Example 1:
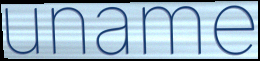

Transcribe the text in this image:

uname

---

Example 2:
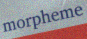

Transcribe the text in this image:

morpheme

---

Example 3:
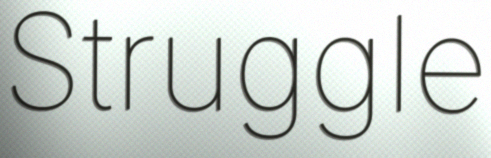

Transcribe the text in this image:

Struggle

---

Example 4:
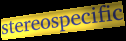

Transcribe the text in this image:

stereospecific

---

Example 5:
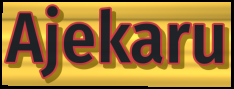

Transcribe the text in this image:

Ajekaru